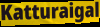
Katturaigal